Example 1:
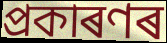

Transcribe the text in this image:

প্ৰকাৰণৰ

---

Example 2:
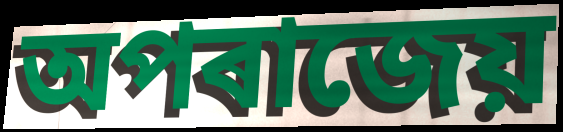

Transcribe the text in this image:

অপৰাজেয়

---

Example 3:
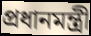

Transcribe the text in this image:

প্ৰধানমন্ত্ৰী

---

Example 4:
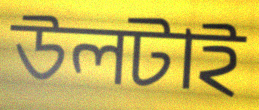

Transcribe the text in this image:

উলটাই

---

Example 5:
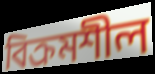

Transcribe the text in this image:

বিক্ৰমশীল